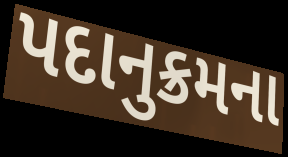
પદાનુક્રમના